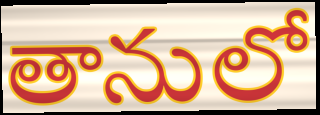
తానులో